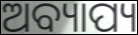
ଅବ୍ୟାପ୍ୟ